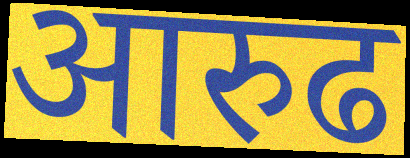
आरुढ